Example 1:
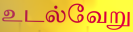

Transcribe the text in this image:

உடல்வேறு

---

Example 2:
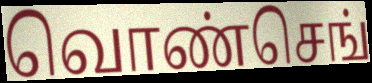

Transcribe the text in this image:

வொண்செங்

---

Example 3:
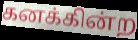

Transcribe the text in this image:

கனக்கின்ற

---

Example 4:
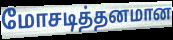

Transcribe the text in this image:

மோசடித்தனமான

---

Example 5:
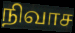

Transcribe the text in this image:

நிவாச